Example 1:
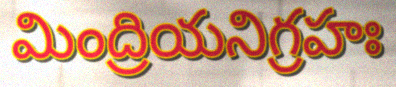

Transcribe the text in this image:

మింద్రియనిగ్రహః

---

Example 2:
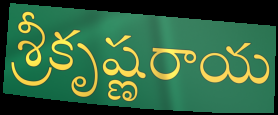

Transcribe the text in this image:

శ్రీకృష్ణరాయ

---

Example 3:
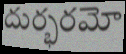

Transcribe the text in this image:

దుర్భరమో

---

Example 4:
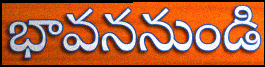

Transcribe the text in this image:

భావననుండి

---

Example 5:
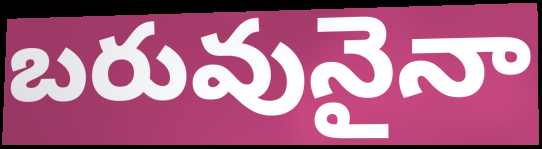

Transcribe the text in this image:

బరువునైనా